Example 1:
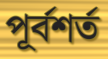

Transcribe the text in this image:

পূর্বশর্ত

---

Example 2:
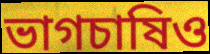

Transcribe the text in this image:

ভাগচাষিও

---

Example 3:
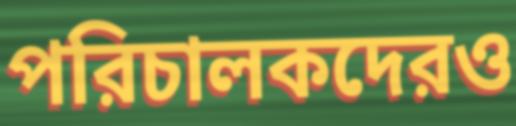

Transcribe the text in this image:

পরিচালকদেরও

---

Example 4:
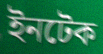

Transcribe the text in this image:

ইনটেক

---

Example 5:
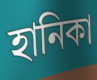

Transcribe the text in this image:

হানিকা